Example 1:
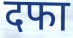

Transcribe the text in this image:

दफा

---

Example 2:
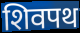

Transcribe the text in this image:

शिवपथ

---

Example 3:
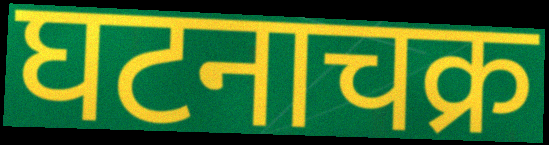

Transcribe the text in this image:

घटनाचक्र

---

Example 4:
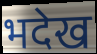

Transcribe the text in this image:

भदेख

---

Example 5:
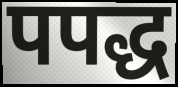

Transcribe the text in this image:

पपद्ध